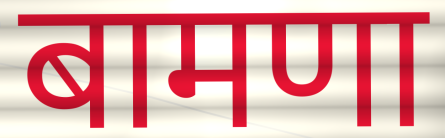
बामणा